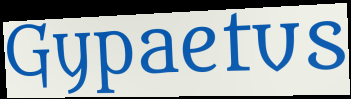
Gypaetus